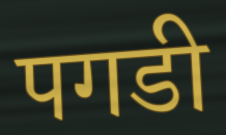
पगडी